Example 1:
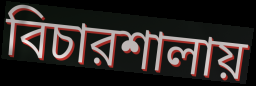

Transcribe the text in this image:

বিচারশালায়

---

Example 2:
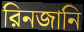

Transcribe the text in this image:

রিনজানি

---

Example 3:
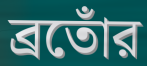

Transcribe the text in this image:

ব্রতোঁর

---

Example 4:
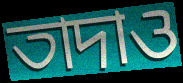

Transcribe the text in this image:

তাদাও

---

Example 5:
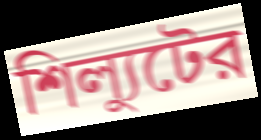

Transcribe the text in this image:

শিল্যুটের